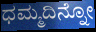
ಧಮ್ಮದಿನ್ನೋ